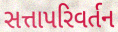
સત્તાપરિવર્તન